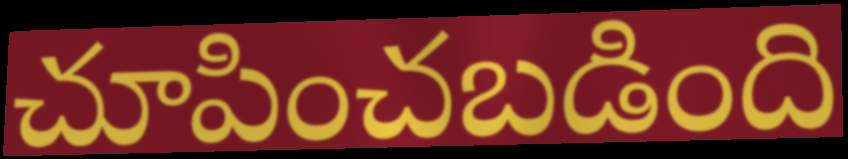
చూపించబడింది